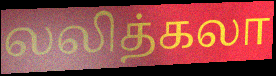
லலித்கலா